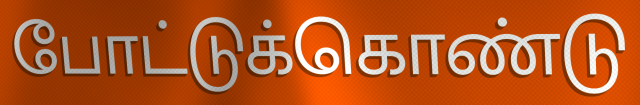
போட்டுக்கொண்டு